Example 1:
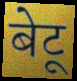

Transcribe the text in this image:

बेटू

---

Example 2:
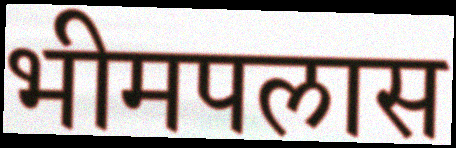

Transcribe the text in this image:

भीमपलास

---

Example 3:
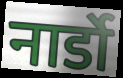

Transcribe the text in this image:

नार्डो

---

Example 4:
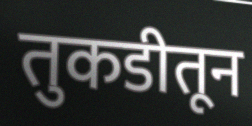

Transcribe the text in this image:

तुकडीतून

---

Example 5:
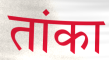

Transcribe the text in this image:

तांका